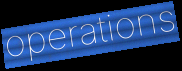
operations